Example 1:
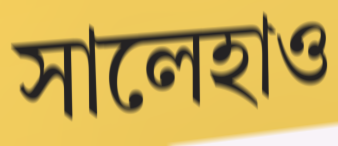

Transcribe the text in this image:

সালেহাও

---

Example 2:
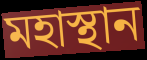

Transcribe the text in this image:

মহাস্থান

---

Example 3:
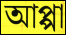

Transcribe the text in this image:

আপ্পা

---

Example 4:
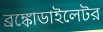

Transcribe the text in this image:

ব্রঙ্কোডাইলেটর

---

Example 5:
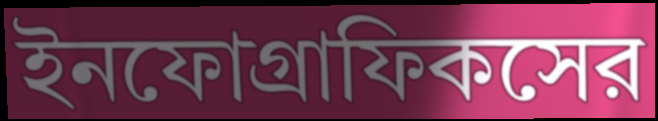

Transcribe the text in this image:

ইনফোগ্রাফিকসের